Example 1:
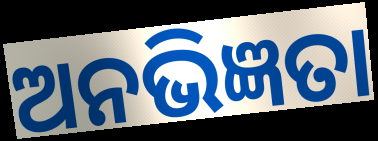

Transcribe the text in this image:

ଅନଭିଜ୍ଞତା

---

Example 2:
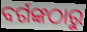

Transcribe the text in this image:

ବର୍ଗଙ୍କଠାରୁ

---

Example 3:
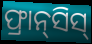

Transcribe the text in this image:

ଫ୍ରାନ୍‌ସିସ୍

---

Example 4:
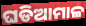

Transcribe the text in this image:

ଘଡିଆମାଳ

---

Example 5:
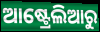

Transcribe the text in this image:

ଆଷ୍ଟ୍ରେଲିଆରୁ